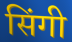
सिंगी